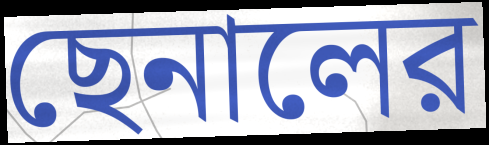
ছেনালের